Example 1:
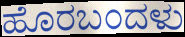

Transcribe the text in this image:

ಹೊರಬಂದಳು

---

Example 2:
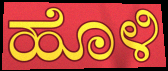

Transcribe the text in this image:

ಹೊಳಿ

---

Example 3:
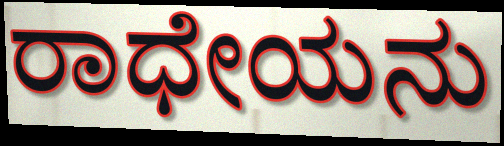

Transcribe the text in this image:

ರಾಧೇಯನು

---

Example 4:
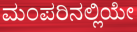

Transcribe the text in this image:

ಮಂಪರಿನಲ್ಲಿಯೇ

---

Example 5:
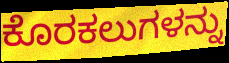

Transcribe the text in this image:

ಕೊರಕಲುಗಳನ್ನು